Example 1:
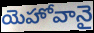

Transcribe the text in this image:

యెహోవానై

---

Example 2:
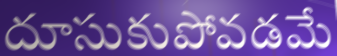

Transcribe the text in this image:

దూసుకుపోవడమే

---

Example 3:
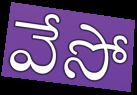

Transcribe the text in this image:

వేసో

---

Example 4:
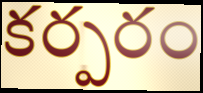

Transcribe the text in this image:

కర్పరం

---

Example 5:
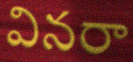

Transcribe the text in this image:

వినరా